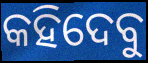
କହିଦେବୁ